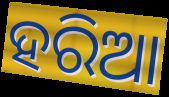
ହରିଆ